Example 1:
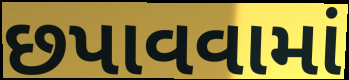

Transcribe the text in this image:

છપાવવામાં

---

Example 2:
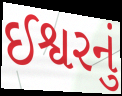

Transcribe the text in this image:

ઈશ્વરનું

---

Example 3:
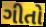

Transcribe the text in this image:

ગીતો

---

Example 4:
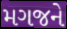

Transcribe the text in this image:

મગજને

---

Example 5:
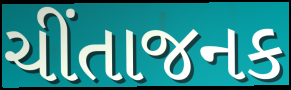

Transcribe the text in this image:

ચીંતાજનક